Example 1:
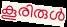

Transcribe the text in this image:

കൂരിരുൾ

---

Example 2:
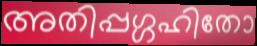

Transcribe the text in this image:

അതിപ്പഗ്ഗഹിതോ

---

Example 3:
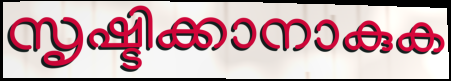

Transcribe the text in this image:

സൃഷ്ടിക്കാനാകുക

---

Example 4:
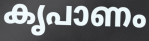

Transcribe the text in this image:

കൃപാണം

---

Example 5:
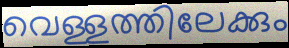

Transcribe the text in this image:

വെള്ളത്തിലേക്കും